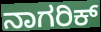
ನಾಗರಿಕ್